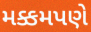
મક્કમપણે